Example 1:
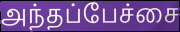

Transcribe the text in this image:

அந்தப்பேச்சை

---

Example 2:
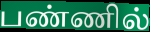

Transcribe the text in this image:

பண்ணில்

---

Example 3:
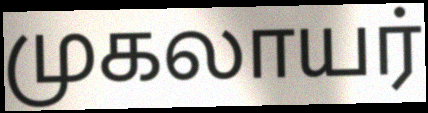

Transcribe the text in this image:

முகலாயர்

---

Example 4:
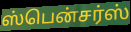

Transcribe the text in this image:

ஸ்பென்சர்ஸ்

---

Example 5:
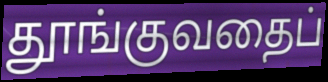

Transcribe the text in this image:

தூங்குவதைப்